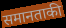
समानताकी